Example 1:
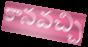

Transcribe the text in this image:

కానవచ్చి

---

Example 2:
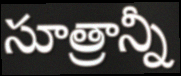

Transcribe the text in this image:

సూత్రాన్నీ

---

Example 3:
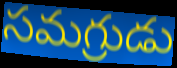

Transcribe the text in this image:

సమగ్రుడు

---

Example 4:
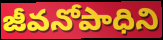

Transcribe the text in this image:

జీవనోపాధిని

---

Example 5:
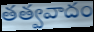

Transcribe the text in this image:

తత్వవాదం